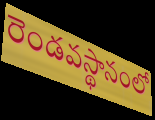
రెండవస్థానంలో